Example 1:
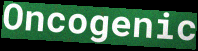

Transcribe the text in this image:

Oncogenic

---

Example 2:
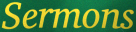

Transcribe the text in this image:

Sermons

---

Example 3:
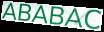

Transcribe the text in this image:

ABABAC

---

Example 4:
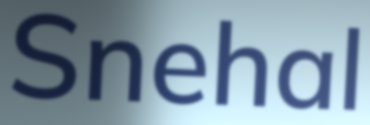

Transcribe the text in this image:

Snehal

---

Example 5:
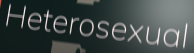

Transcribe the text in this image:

Heterosexual